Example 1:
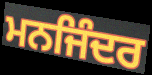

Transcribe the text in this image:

ਮਨਜਿੰਦਰ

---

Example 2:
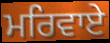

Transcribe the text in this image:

ਮਰਿਵਾਏ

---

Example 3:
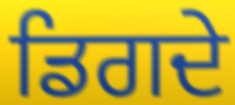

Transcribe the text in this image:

ਡਿਗਦੇ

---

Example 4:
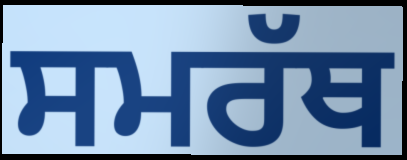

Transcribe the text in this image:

ਸਮਰੱਥ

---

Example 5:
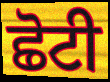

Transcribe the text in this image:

ਛੋਟੀ